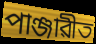
পাঞ্জাৱীত